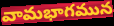
వామభాగమున